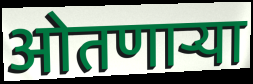
ओतणाऱ्या